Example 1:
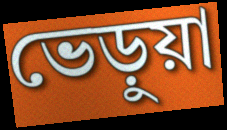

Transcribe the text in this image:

ভেড়ুয়া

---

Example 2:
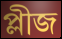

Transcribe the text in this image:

প্লীজ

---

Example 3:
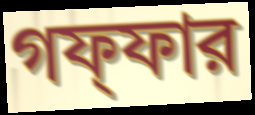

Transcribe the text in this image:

গফ্ফার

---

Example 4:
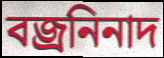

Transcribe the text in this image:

বজ্রনিনাদ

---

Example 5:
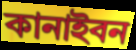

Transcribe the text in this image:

কানাইবন